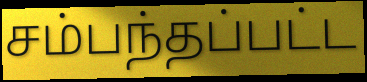
சம்பந்தப்பட்ட